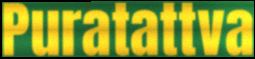
Puratattva